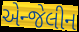
એન્જેલીન